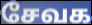
சேவக